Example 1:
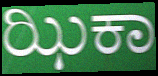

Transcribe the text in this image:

ಝಿಕಾ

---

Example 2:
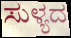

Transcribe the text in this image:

ಸುಳ್ಯದ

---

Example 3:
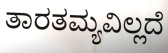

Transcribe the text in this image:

ತಾರತಮ್ಯವಿಲ್ಲದೆ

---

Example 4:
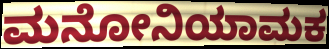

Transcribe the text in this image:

ಮನೋನಿಯಾಮಕ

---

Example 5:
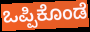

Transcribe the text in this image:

ಒಪ್ಪಿಕೊಂಡೆ